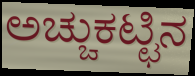
ಅಚ್ಚುಕಟ್ಟಿನ